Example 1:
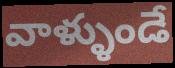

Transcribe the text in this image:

వాళ్ళుండే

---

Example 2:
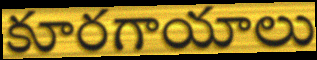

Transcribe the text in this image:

కూరగాయాలు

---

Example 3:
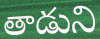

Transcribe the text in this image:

తాడుని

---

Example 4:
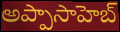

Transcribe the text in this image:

అప్పాసాహెబ్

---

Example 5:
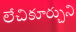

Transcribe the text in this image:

లేచికూర్చుని